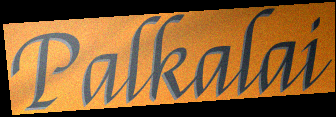
Palkalai